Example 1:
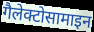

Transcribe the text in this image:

गैलेक्टोसामाइन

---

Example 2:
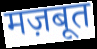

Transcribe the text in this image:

मज़बूत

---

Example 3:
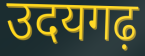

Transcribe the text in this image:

उदयगढ़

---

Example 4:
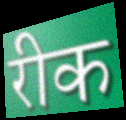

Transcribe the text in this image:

रीक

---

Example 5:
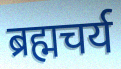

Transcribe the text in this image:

ब्रह्मचर्य